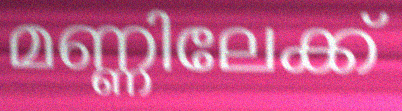
മണ്ണിലേക്ക്